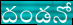
దండనో